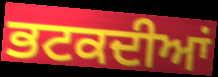
ਭਟਕਦੀਆਂ